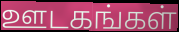
ஊடகங்கள்